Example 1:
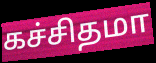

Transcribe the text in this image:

கச்சிதமா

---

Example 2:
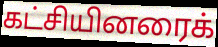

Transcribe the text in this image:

கட்சியினரைக்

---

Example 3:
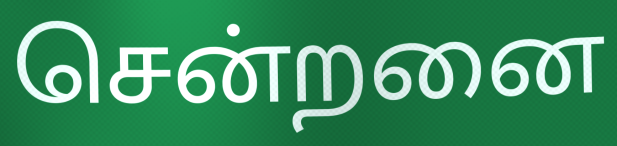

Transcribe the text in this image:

சென்றனை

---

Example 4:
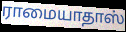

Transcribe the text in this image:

ராமையாதாஸ்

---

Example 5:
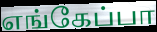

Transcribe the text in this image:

எங்கேப்பா